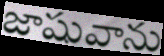
జాషువాను